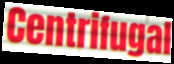
Centrifugal